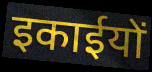
इकाईयों